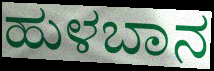
ಹುಳಬಾನ